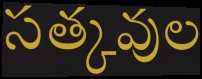
సత్కవుల